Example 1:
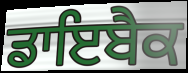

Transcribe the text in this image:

ਡਾਇਬੈਕ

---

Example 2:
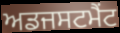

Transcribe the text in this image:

ਅਡਜਸਟਮੈਂਟ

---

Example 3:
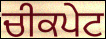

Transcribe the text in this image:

ਚੀਕਪੇਟ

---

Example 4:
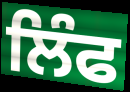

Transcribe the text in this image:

ਲਿੰਫ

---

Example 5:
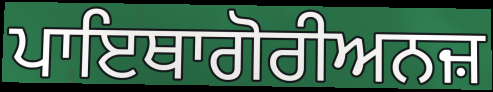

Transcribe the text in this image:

ਪਾਇਥਾਗੋਰੀਅਨਜ਼